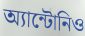
অ্যান্টোনিও